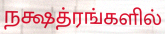
நக்ஷத்ரங்களில்